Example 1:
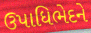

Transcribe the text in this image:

ઉપાધિભેદને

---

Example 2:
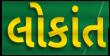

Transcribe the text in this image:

લોકાંત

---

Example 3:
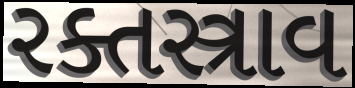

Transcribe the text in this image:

રક્તસ્ત્રાવ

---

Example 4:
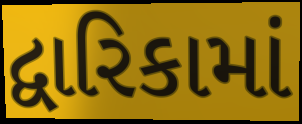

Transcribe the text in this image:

દ્વારિકામાં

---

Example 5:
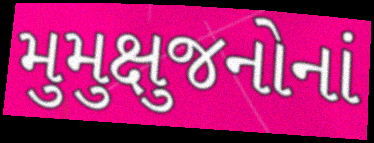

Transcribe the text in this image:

મુમુક્ષુજનોનાં